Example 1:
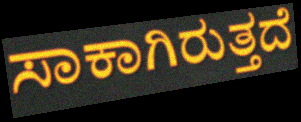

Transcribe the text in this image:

ಸಾಕಾಗಿರುತ್ತದೆ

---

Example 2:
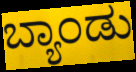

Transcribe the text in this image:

ಬ್ಯಾಂಡು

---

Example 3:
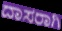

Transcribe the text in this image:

ದಾಸರಾಗಿ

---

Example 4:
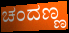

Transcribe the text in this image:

ಚಂದಣ್ಣ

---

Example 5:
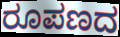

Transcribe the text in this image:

ರೂಪಣದ